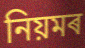
নিয়মৰ